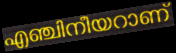
എഞ്ചിനീയറാണ്